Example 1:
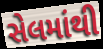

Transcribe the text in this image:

સેલમાંથી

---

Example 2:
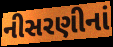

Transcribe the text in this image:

નીસરણીનાં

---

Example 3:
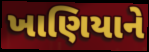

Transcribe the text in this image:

ખાણિયાને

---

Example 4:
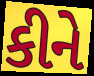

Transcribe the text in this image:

કીને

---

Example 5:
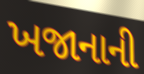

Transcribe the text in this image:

ખજાનાની